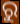
ରୁ